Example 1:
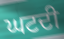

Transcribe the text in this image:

ਘਟਦੀ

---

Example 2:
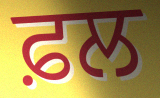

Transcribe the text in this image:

ਫ਼ਲ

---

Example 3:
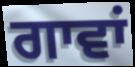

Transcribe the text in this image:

ਗਾਵਾਂ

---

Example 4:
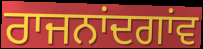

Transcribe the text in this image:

ਰਾਜਨਾਂਦਗਾਂਵ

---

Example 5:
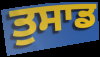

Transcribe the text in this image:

ਤੁਸਾਡ